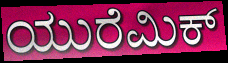
ಯುರೆಮಿಕ್